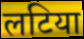
लटिया